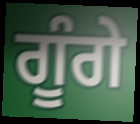
ਗੂੰਗੇ